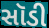
સૉડી